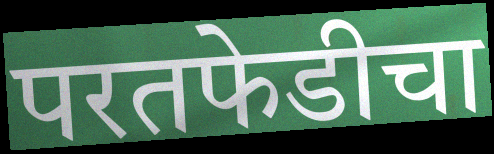
परतफेडीचा